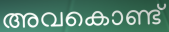
അവകൊണ്ട്